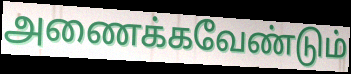
அணைக்கவேண்டும்